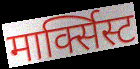
मार्क्सिस्ट